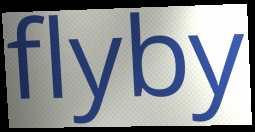
flyby